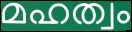
മഹത്വം